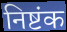
निष्टंक